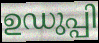
ഉഡുപ്പി